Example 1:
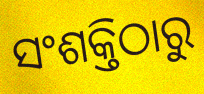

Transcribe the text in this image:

ସଂଶକ୍ତିଠାରୁ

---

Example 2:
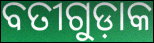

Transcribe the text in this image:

ବତୀଗୁଡ଼ାକ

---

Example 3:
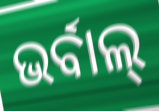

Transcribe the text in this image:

ଭର୍ବାଲ୍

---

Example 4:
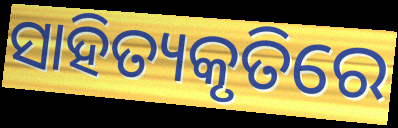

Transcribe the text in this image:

ସାହିତ୍ୟକୃତିରେ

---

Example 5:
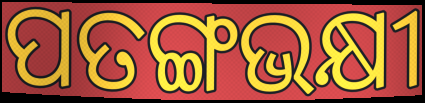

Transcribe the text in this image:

ପତଙ୍ଗଭକ୍ଷୀ